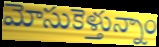
మోసుకెళ్తున్నాం